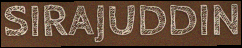
SIRAJUDDIN